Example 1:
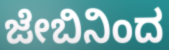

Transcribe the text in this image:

ಜೇಬಿನಿಂದ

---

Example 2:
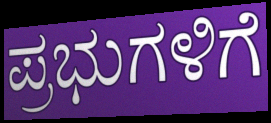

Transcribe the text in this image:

ಪ್ರಭುಗಳಿಗೆ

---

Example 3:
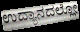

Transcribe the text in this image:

ಉದ್ಯಾನದಲ್ಲೋ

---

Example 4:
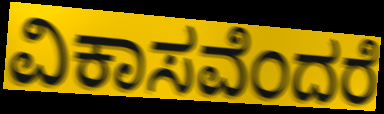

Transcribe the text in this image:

ವಿಕಾಸವೆಂದರೆ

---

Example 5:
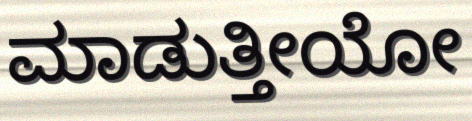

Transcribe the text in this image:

ಮಾಡುತ್ತೀಯೋ